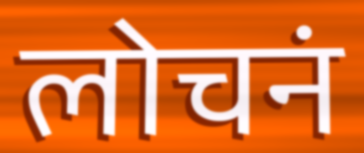
लोचनं